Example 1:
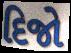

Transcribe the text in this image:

દિજો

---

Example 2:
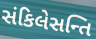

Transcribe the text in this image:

સંકિલેસન્તિ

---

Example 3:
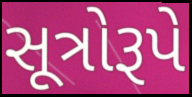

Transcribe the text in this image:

સૂત્રોરૂપે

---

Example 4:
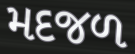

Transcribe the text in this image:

મદજળ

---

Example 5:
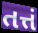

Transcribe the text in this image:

તત્તં